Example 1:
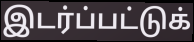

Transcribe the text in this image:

இடர்ப்பட்டுக்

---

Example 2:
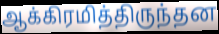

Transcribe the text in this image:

ஆக்கிரமித்திருந்தன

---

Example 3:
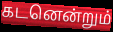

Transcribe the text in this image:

கடனென்றும்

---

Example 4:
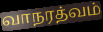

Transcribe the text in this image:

வாநரத்வம்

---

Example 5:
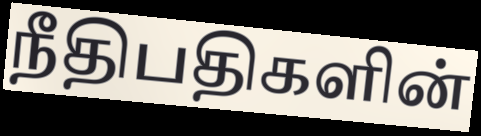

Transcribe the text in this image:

நீதிபதிகளின்